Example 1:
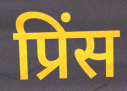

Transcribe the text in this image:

प्रिंस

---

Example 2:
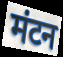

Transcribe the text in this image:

मंटन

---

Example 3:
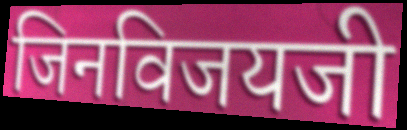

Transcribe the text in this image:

जिनविजयजी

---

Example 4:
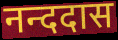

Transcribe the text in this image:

नन्ददास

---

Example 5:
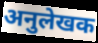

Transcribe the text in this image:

अनुलेखक